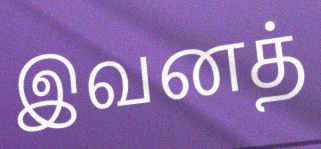
இவனத்